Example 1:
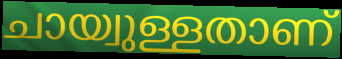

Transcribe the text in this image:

ചായ്വുള്ളതാണ്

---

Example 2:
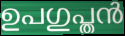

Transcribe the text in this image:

ഉപഗുപ്തൻ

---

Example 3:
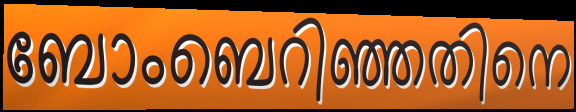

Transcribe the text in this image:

ബോംബെറിഞ്ഞതിനെ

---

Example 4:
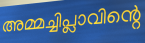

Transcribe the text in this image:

അമ്മച്ചിപ്ലാവിന്റെ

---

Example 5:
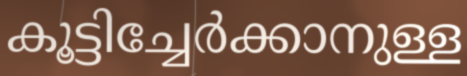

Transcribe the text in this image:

കൂട്ടിച്ചേർക്കാനുള്ള